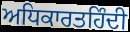
ਅਧਿਕਾਰਤਹਿੰਦੀ